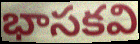
భాసకవి